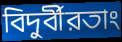
বিদুর্বীরতাং